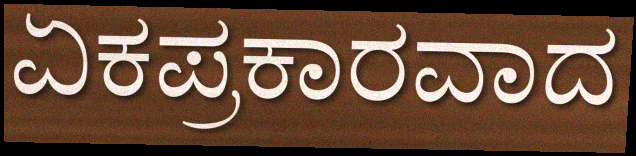
ಏಕಪ್ರಕಾರವಾದ